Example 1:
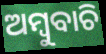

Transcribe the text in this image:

ଅମ୍ବୁବାଚି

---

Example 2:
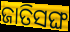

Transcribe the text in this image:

ଜାତିସଙ୍ଘ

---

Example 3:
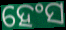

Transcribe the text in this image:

ହେଂସ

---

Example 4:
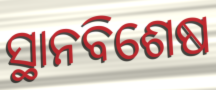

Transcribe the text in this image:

ସ୍ଥାନବିଶେଷ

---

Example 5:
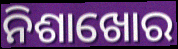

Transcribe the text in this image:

ନିଶାଖୋର